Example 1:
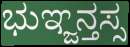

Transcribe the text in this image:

ಭುಞ್ಜನ್ತಸ್ಸ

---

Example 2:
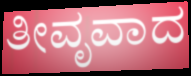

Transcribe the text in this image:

ತೀವೃವಾದ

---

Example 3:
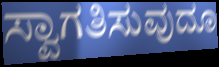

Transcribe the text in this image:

ಸ್ವಾಗತಿಸುವುದೂ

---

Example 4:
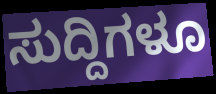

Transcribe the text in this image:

ಸುದ್ದಿಗಳೂ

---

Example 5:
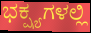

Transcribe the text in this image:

ಭಕ್ಷ್ಯಗಳಲ್ಲಿ